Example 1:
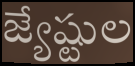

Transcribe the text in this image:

జ్యేష్టుల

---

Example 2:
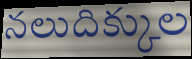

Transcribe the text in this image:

నలుదిక్కుల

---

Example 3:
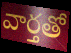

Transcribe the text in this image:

వార్తతో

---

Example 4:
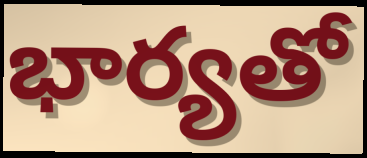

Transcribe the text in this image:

భార్యతో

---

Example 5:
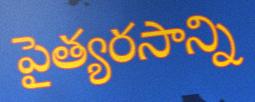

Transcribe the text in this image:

పైత్యరసాన్ని